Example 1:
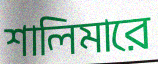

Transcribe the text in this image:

শালিমারে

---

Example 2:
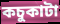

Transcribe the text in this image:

কচুকাটা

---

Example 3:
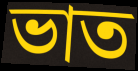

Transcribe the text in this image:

ভাত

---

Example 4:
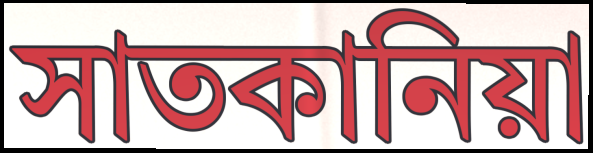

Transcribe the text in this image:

সাতকানিয়া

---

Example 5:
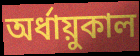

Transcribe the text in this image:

অর্ধায়ুকাল